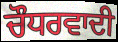
ਚੌਧਰਵਾਦੀ